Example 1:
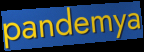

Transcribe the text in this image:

pandemya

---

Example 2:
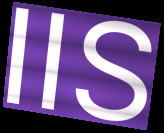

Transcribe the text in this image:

IIS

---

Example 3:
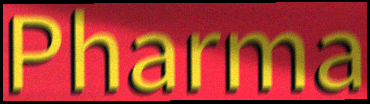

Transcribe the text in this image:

Pharma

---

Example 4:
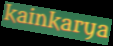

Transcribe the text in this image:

kainkarya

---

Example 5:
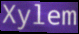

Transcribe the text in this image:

Xylem